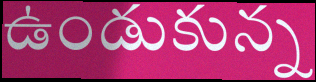
ఉండుకున్న